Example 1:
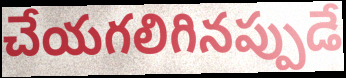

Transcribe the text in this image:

చేయగలిగినప్పుడే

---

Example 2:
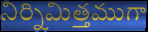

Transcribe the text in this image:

నిర్నిమిత్తముగా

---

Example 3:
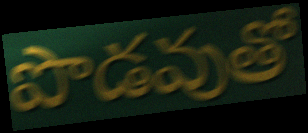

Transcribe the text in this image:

పొడవుతో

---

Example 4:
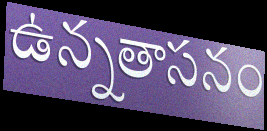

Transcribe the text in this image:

ఉన్నతాసనం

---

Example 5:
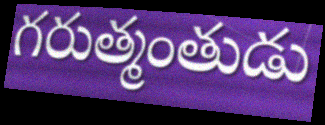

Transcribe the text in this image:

గరుత్మంతుడు